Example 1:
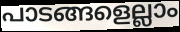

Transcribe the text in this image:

പാടങ്ങളെല്ലാം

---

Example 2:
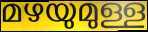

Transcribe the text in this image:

മഴയുമുള്ള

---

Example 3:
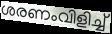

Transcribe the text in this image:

ശരണംവിളിച്ച്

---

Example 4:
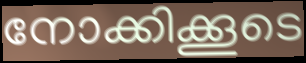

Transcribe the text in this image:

നോക്കിക്കൂടെ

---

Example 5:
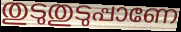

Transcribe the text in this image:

തുടുതുടുപ്പാണേ